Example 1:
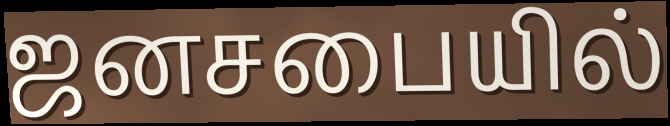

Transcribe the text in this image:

ஜனசபையில்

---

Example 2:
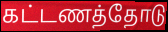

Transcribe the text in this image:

கட்டணத்தோடு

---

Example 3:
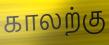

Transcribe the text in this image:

காலற்கு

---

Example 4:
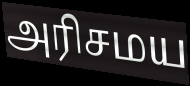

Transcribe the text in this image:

அரிசமய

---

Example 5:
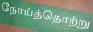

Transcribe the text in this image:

நோய்த்தொற்று